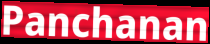
Panchanan